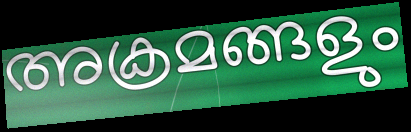
അക്രമങ്ങളും